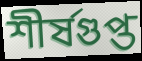
শীর্ষগুপ্ত